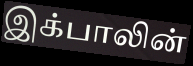
இக்பாலின்